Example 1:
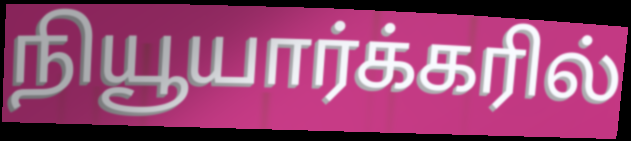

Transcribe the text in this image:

நியூயார்க்கரில்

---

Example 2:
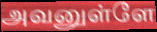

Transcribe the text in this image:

அவனுள்ளே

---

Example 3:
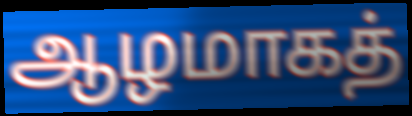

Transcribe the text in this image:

ஆழமாகத்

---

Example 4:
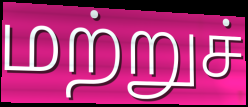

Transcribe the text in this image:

மற்றுச்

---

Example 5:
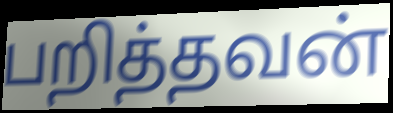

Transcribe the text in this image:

பறித்தவன்